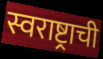
स्वराष्ट्राची